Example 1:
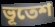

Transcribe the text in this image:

ভূতেশ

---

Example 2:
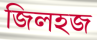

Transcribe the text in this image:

জিলহজ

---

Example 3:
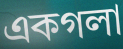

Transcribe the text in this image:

একগলা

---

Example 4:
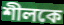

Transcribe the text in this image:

শীলকে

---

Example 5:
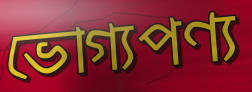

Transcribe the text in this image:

ভোগ্যপণ্য